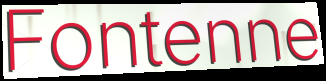
Fontenne